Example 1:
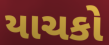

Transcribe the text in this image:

યાચકો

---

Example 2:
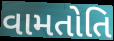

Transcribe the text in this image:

વામતોતિ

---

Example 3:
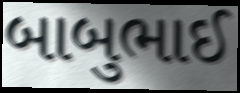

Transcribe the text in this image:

બાબુભાઈ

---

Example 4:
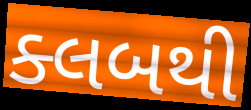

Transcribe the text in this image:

ક્લબથી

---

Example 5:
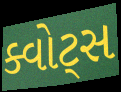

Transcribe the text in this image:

ક્વોટ્સ